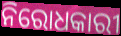
ନିରୋଧକାରୀ